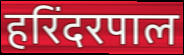
हरिंदरपाल